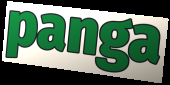
panga